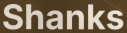
Shanks